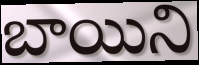
బాయిని